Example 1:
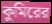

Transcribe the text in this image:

কুমিরের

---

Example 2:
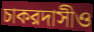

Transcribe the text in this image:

চাকরদাসীও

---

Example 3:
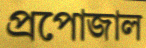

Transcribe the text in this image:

প্রপোজাল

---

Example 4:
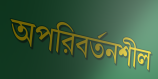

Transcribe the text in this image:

অপরিবর্তনশীল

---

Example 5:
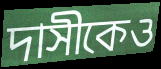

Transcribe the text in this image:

দাসীকেও